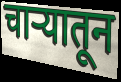
चाऱ्यातून